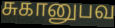
சுகானுபவ